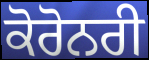
ਕੋਰੋਨਰੀ